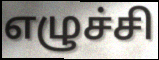
எழுச்சி